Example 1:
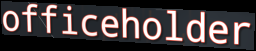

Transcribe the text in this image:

officeholder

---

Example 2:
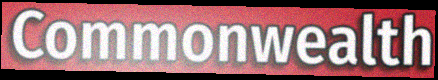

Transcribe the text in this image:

Commonwealth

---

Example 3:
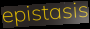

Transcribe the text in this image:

epistasis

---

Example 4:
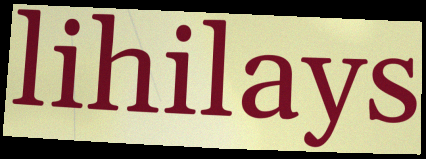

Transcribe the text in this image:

lihilays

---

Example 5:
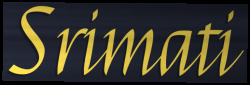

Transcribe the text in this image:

Srimati